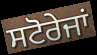
ਸਟੋਰੇਜਾਂ